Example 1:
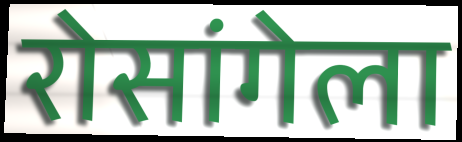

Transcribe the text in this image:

रोसांगेला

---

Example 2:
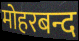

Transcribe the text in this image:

मोहरबन्द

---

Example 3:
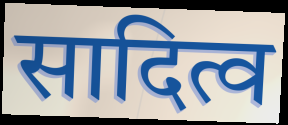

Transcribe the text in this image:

सादित्व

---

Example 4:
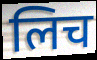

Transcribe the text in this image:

लिच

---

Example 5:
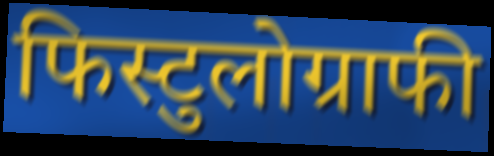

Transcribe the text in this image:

फिस्टुलोग्राफी